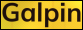
Galpin